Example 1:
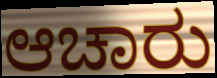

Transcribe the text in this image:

ಆಚಾರು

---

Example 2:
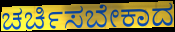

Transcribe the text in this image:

ಚರ್ಚಿಸಬೇಕಾದ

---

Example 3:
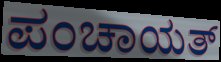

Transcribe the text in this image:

ಪಂಚಾಯತ್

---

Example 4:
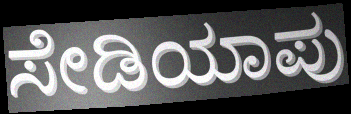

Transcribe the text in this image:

ಸೇಡಿಯಾಪು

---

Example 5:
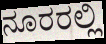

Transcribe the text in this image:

ನೂರರಲ್ಲಿ